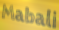
Mabali